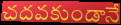
చదవకుండానే